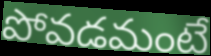
పోవడమంటే